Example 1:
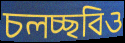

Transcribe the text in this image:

চলচ্ছবিও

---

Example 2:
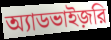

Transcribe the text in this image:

অ্যাডভাইজ়রি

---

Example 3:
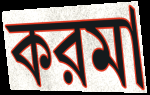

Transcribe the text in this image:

করমা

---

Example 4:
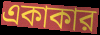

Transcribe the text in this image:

একাকার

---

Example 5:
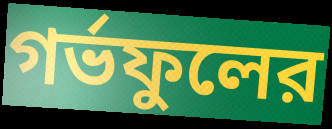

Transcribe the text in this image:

গর্ভফুলের